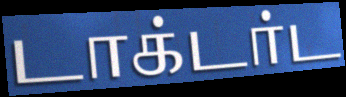
டாக்டர்ட